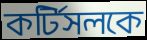
কর্টিসলকে